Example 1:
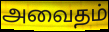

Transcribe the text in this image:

அவைதம்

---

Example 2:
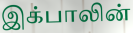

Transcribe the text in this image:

இக்பாலின்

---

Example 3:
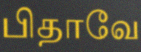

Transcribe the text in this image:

பிதாவே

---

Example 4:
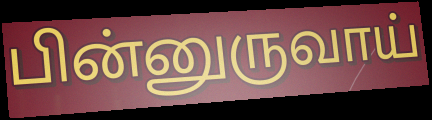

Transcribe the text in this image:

பின்னுருவாய்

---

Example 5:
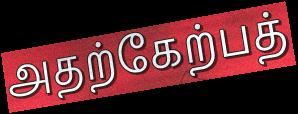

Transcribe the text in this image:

அதற்கேற்பத்